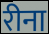
रीना